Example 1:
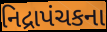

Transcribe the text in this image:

નિદ્રાપંચકના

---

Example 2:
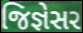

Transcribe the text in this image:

જિજ્ઞેસર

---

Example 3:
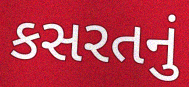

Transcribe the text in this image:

કસરતનું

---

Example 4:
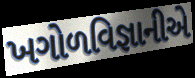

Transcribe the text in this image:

ખગોળવિજ્ઞાનીએ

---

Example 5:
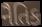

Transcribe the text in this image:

નૈતિક